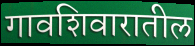
गावशिवारातील